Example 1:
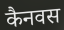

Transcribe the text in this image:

कैनवस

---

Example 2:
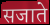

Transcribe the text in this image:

सजाते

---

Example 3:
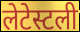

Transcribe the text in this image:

लेटेस्टली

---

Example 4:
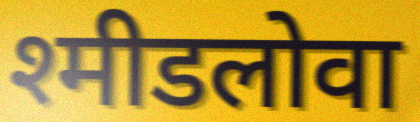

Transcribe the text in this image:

श्मीडलोवा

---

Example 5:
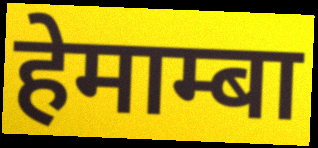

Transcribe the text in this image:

हेमाम्बा